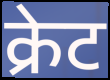
क्रेट